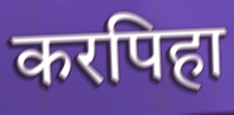
करपिहा